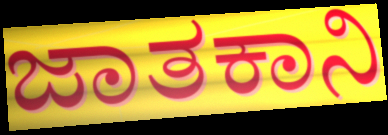
ಜಾತಕಾನಿ